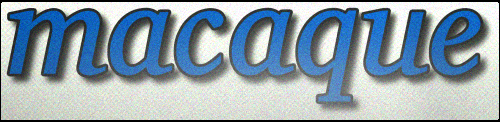
macaque